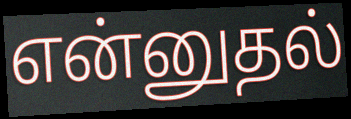
என்னுதல்